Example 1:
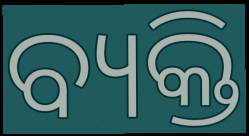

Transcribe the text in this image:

ବ୍ୟକ୍ତି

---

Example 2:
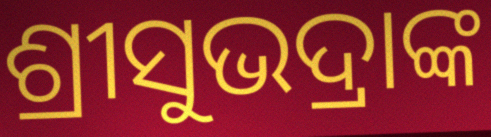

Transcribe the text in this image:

ଶ୍ରୀସୁଭଦ୍ରାଙ୍କ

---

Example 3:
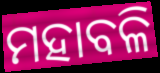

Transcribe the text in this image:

ମହାବଳି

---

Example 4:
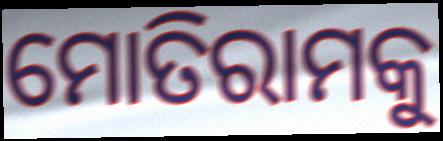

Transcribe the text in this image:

ମୋତିରାମକୁ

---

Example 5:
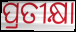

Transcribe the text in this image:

ପ୍ରତୀକ୍ଷା